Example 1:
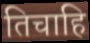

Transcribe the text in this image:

तिचाहि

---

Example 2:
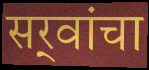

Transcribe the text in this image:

सर्वांचा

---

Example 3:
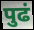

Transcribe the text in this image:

पुढं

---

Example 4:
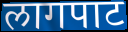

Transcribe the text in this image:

लागपाट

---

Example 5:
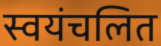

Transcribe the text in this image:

स्वयंचलित